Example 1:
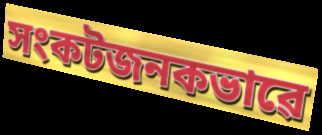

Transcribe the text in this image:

সংকটজনকভাৱে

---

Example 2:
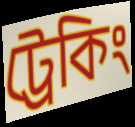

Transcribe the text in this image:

ট্ৰেকিং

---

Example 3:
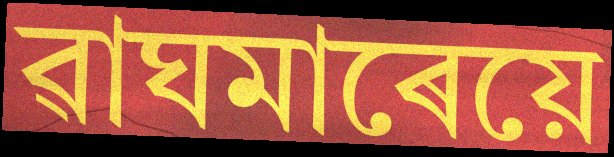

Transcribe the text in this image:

ৱাঘমাৰেয়ে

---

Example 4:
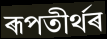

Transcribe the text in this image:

ৰূপতীৰ্থৰ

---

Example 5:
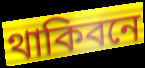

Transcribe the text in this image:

থাকিবনে